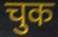
चुक